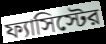
ফ্যাসিস্টের